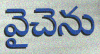
వైచెను